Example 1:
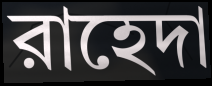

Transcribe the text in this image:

রাহেদা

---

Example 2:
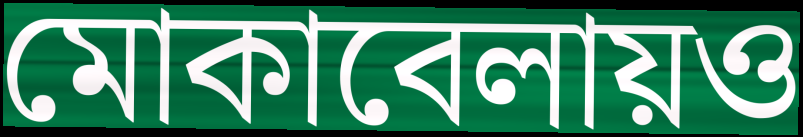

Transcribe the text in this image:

মোকাবেলায়ও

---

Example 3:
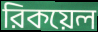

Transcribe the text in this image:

রিকয়েল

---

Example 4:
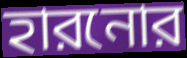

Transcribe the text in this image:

হারনোর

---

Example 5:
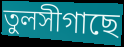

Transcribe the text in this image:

তুলসীগাছে